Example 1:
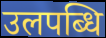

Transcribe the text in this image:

उलपब्धि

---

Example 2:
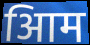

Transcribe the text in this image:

आिम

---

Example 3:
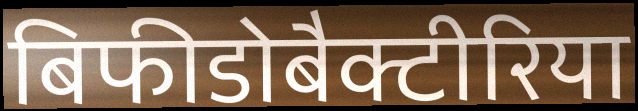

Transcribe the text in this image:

बिफीडोबैक्टीरिया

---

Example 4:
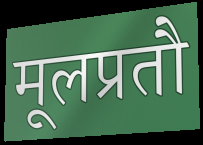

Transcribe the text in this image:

मूलप्रतौ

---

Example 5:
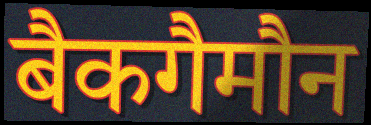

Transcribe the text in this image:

बैकगैमौन